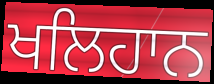
ਖਲਿਹਾਨ